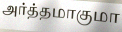
அர்த்தமாகுமா